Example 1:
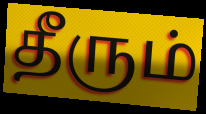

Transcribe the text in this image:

தீரும்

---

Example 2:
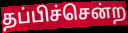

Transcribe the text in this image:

தப்பிச்சென்ற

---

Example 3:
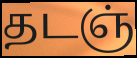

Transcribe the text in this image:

தடஞ்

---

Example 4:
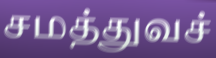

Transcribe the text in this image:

சமத்துவச்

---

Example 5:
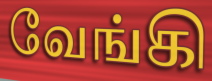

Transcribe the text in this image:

வேங்கி